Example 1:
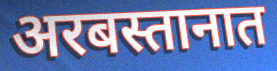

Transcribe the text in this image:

अरबस्तानात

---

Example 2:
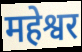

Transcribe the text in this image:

महेश्वर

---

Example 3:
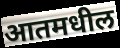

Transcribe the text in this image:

आतमधील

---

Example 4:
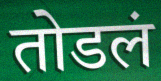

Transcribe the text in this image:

तोडलं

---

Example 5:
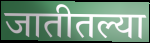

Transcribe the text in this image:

जातीतल्या